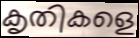
കൃതികളെ